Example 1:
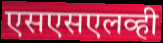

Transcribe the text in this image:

एसएसएलव्ही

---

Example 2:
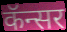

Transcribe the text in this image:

कॅन्सर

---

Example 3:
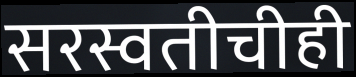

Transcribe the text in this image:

सरस्वतीचीही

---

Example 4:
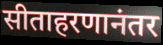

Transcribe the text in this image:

सीताहरणानंतर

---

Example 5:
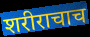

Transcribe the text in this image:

शरीराचाच